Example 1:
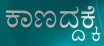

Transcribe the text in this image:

ಕಾಣದ್ದಕ್ಕೆ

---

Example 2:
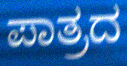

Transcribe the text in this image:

ಪಾತ್ರದ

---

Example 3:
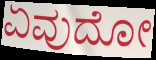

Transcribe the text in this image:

ಏವುದೋ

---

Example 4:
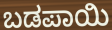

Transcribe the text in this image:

ಬಡಪಾಯಿ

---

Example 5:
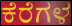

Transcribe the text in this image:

ಕೆರೆಗಳ